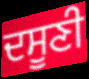
ਦਸੂਣੀ